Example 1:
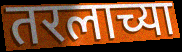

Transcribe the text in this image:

तरलाच्या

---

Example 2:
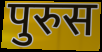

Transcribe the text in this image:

पुरुस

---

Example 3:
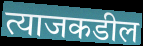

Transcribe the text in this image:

त्याजकडील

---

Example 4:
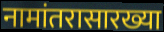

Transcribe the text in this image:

नामांतरासारख्या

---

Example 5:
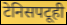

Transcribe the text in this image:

टेनिसपटूही